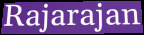
Rajarajan